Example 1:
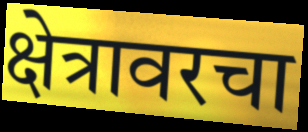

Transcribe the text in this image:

क्षेत्रावरचा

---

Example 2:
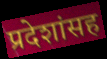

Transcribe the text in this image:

प्रदेशांसह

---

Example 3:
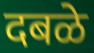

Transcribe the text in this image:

दबळे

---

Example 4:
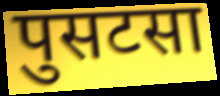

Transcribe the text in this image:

पुसटसा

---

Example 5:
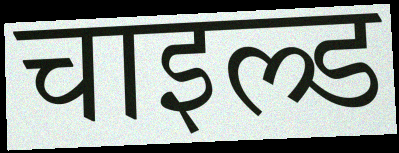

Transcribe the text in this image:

चाइल्ड